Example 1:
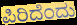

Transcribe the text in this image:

ಪಿರಿದೆಂದು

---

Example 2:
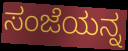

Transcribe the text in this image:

ಸಂಜೆಯನ್ನ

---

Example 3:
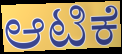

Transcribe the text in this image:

ಆಟಿಕೆ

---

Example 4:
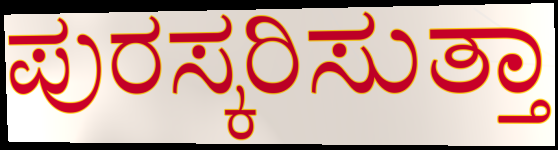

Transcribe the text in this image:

ಪುರಸ್ಕರಿಸುತ್ತಾ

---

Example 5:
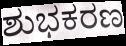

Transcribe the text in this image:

ಶುಭಕರಣ